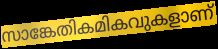
സാങ്കേതികമികവുകളാണ്